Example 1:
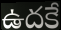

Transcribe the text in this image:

ఉదకే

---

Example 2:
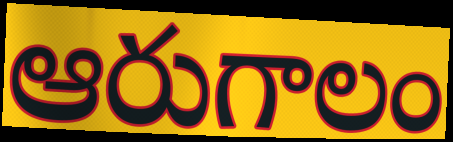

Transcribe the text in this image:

ఆరుగాలం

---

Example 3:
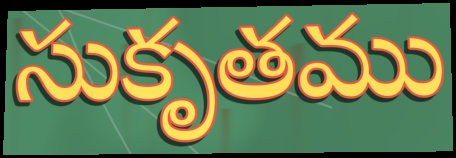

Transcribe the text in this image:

సుకృతము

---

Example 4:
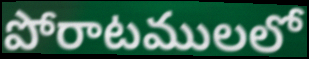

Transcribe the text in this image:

పోరాటములలో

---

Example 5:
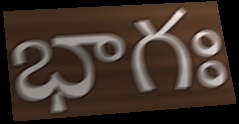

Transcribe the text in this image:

భాగః